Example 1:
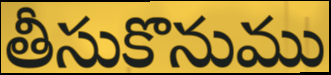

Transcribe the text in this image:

తీసుకొనుము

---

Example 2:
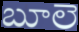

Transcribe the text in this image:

బూలె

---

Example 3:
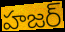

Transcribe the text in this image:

హజర్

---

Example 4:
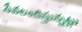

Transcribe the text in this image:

సేవలందిస్తున్నట్లు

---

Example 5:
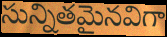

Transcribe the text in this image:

సున్నితమైనవిగా